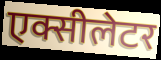
एक्सीलेटर